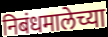
निबंधमालेच्या